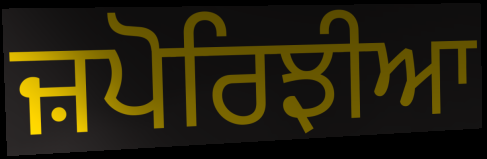
ਜ਼ਪੋਰਿਝੀਆ